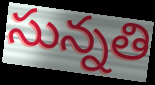
సున్నతి